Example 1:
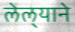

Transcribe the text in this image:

लेल्याने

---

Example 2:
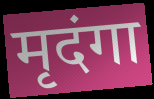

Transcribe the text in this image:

मृदंगा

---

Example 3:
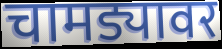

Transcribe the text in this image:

चामड्यावर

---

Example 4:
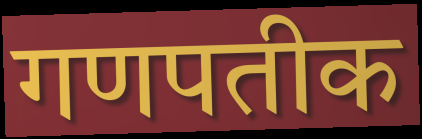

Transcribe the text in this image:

गणपतीक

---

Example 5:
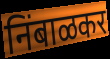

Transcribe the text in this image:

निंबाळकर